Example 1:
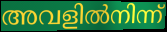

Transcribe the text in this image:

അവളിൽനിന്ന്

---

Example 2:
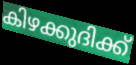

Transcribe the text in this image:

കിഴക്കുദിക്ക്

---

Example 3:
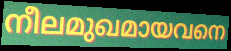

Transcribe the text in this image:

നീലമുഖമായവനെ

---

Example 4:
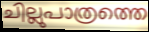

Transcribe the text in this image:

ചില്ലുപാത്രത്തെ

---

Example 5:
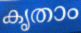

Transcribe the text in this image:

കൃതാം